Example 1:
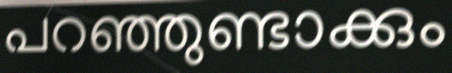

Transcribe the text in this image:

പറഞ്ഞുണ്ടാക്കും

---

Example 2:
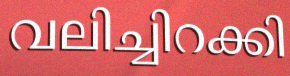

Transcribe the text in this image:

വലിച്ചിറക്കി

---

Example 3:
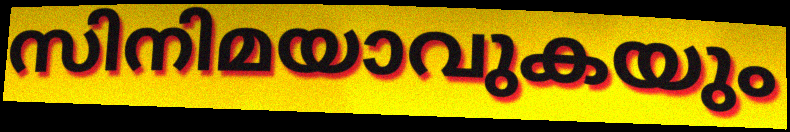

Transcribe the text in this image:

സിനിമയാവുകയും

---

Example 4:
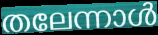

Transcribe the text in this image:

തലേന്നാൾ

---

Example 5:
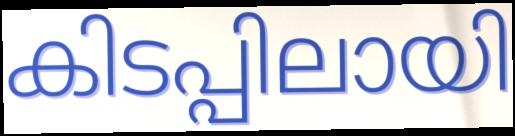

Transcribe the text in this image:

കിടപ്പിലായി